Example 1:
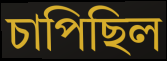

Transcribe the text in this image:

চাপিছিল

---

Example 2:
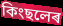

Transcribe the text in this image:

কিংছলেৰ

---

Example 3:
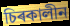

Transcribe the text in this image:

চিৰকালীন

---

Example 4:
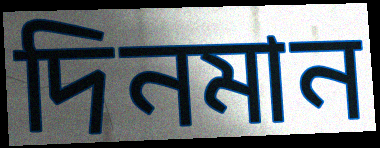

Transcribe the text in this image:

দিনমান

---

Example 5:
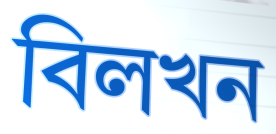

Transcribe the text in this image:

বিলখন